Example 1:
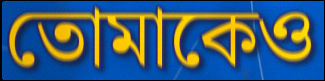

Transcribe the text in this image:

তোমাকেও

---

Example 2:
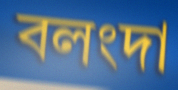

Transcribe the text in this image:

বলংদা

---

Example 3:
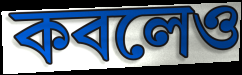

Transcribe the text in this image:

কবলেও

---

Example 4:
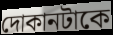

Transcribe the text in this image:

দোকানটাকে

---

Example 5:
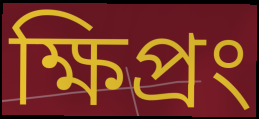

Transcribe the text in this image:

ক্ষিপ্রং